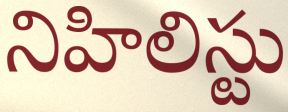
నిహిలిస్టు